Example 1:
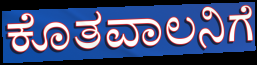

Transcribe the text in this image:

ಕೊತವಾಲನಿಗೆ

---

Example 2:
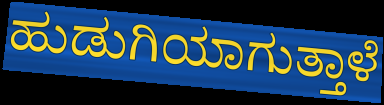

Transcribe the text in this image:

ಹುಡುಗಿಯಾಗುತ್ತಾಳೆ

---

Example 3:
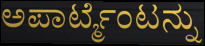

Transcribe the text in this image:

ಅಪಾರ್ಟ್ಮೆಂಟನ್ನು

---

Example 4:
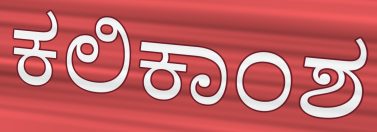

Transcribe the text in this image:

ಕಲಿಕಾಂಶ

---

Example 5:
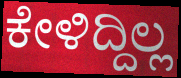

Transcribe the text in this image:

ಕೇಳಿದ್ದಿಲ್ಲ